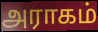
அராகம்